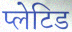
प्लेटिड